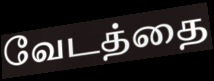
வேடத்தை